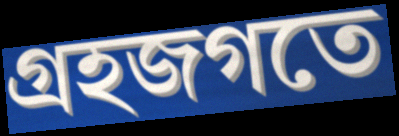
গ্রহজগতে